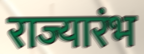
राज्यारंभ